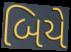
બિયે